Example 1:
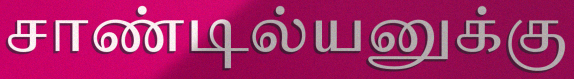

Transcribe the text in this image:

சாண்டில்யனுக்கு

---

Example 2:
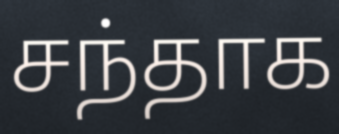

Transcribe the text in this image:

சந்தாக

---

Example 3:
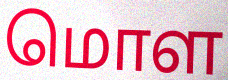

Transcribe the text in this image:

மொள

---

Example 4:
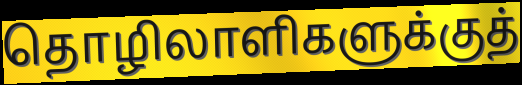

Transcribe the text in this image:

தொழிலாளிகளுக்குத்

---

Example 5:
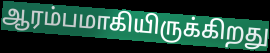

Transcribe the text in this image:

ஆரம்பமாகியிருக்கிறது